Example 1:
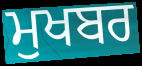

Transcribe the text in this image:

ਮੁਖਬਰ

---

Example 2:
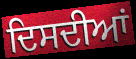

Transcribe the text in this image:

ਦਿਸਦੀਆਂ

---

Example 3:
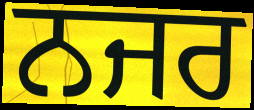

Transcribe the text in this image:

ਨਜਰ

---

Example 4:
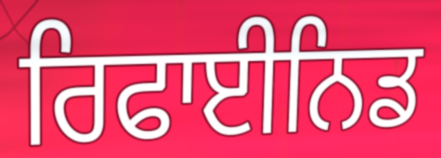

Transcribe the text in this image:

ਰਿਫਾਈਨਿਡ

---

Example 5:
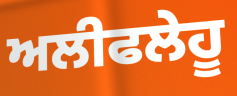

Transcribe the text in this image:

ਅਲੀਫਲੇਹੂ